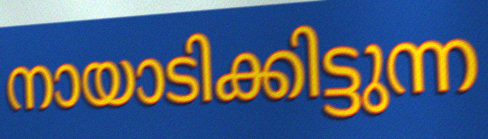
നായാടിക്കിട്ടുന്ന